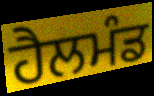
ਹੈਲਮੰਡ